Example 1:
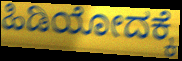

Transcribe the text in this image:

ಹಿಡಿಯೋದಕ್ಕೆ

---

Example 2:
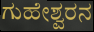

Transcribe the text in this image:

ಗುಹೇಶ್ವರನ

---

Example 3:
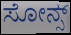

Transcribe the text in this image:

ಸೋನ್ಸ್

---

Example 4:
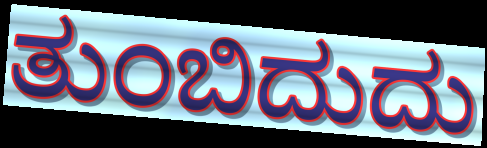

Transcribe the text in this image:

ತುಂಬಿದುದು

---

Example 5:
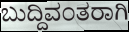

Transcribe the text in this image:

ಬುದ್ದಿವಂತರಾಗಿ